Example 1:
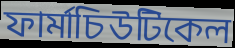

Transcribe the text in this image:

ফাৰ্মাচিউটিকেল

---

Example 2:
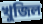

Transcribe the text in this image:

খুজিল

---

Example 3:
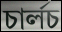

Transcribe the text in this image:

চাৰ্লচ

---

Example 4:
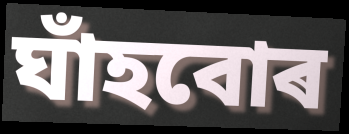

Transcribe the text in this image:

ঘাঁহবোৰ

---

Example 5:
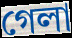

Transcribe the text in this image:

গেলা